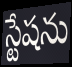
స్టేషను